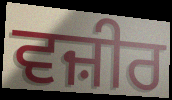
ਵਜ਼ੀਰ